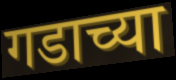
गडाच्या